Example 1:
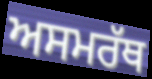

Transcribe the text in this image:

ਅਸਮਰੱਥ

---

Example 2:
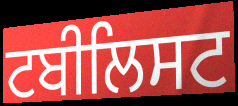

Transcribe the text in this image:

ਟਬੀਲਿਸਟ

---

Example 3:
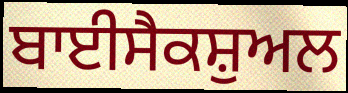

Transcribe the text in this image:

ਬਾਈਸੈਕਸ਼ੁਅਲ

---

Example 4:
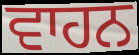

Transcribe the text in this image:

ਵਾਹਨ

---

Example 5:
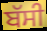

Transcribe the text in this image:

ਬੱਸੀ